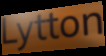
Lytton